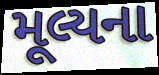
મૂલ્યના